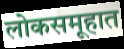
लोकसमूहात